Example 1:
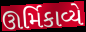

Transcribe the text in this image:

ઊર્મિકાવ્યે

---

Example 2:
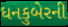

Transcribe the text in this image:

ધનકુબેરની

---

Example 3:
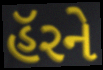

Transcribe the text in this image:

હૅરને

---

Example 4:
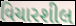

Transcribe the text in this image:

વિચારશીલ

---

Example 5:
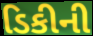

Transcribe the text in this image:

ડિકીની